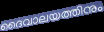
ദൈവാലയത്തിനും